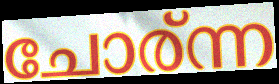
ചോര്ന്ന